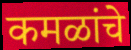
कमळांचे